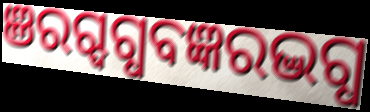
ଞରଗ୍ଦଗ୍ଧବଜ୍ଞରଦ୍ଭଗ୍ଧ